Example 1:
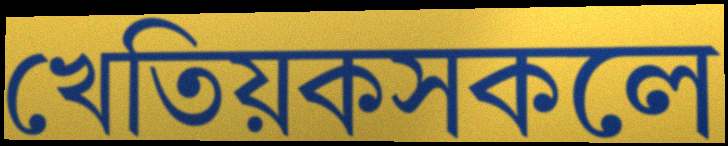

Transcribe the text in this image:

খেতিয়কসকলে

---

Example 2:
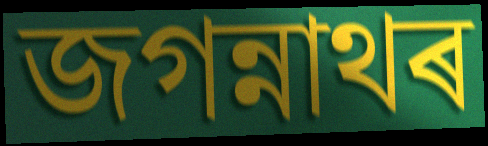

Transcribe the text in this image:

জগন্নাথৰ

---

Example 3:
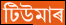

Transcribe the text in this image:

টিউমাৰ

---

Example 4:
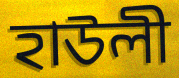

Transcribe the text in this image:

হাউলী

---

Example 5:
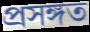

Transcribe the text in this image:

প্ৰসঙ্গত